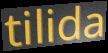
tilida